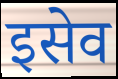
इसेव